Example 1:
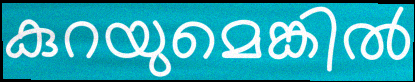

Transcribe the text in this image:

കുറയുമെങ്കിൽ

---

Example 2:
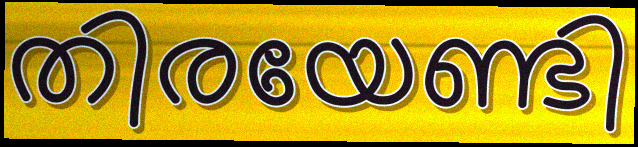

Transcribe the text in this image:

തിരയേണ്ടി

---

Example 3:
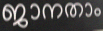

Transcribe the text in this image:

ജാനതാം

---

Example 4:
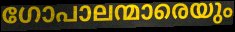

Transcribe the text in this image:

ഗോപാലന്മാരെയും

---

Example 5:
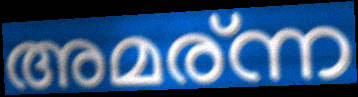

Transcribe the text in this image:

അമര്ന്ന